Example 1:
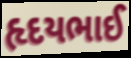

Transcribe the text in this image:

હૃદયભાઈ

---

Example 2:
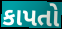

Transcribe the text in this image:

કાપતો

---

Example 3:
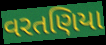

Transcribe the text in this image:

વરતણિયા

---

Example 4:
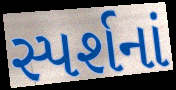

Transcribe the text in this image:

સ્પર્શનાં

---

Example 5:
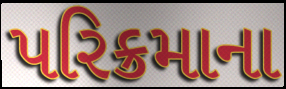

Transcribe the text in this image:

પરિક્રમાના